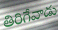
తిరిగేవాడు